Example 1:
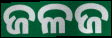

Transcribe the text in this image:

ଜଳଜ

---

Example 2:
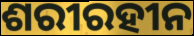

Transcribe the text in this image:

ଶରୀରହୀନ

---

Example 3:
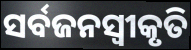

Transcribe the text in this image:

ସର୍ବଜନସ୍ୱୀକୃତି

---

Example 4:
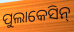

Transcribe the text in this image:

ପୁଲାକେସିନ୍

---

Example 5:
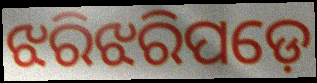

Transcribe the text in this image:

ଝରିଝରିପଡ଼େ